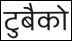
टुबैको